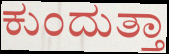
ಕುಂದುತ್ತಾ